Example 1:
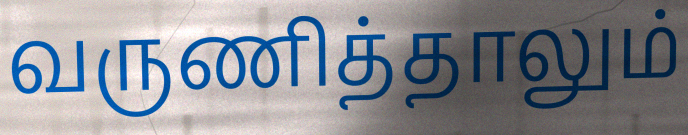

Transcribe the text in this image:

வருணித்தாலும்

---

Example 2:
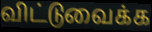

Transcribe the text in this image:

விட்டுவைக்க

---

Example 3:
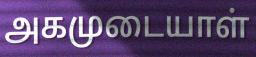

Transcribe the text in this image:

அகமுடையாள்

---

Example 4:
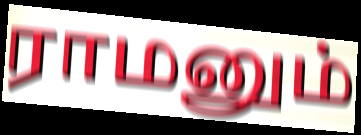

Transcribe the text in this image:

ராமனும்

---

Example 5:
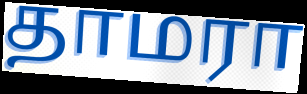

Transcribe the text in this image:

தாமரா